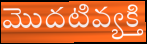
మొదటివ్యక్తి